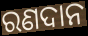
ରଣଦାନ